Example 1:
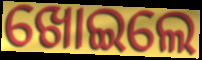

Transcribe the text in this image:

ଖୋଇଲେ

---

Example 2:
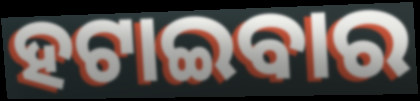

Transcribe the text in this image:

ହଟାଇବାର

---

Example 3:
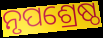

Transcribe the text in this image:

ନୃପଶ୍ରେଷ୍ଠ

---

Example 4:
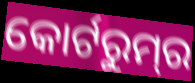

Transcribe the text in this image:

କୋର୍ଟରୁମ୍‌ର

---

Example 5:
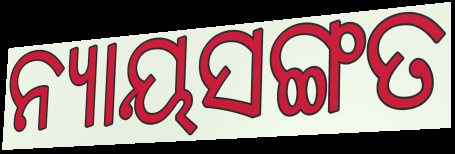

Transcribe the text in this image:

ନ୍ୟାୟସଙ୍ଗତ